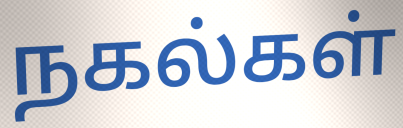
நகல்கள்